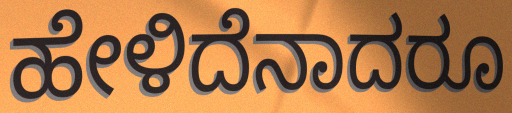
ಹೇಳಿದೆನಾದರೂ